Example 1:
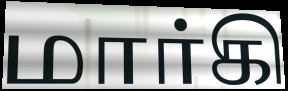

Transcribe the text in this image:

மார்கி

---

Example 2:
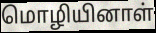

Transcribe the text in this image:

மொழியினாள்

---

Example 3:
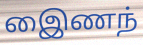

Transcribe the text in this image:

இைணந்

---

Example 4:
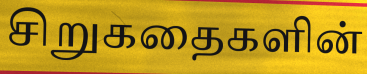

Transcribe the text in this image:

சிறுகதைகளின்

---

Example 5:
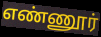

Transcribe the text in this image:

எண்ணூர்